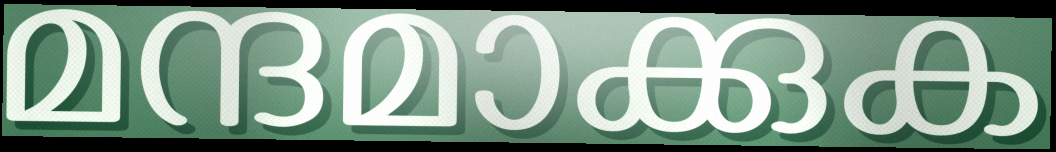
മന്ദമാക്കുക